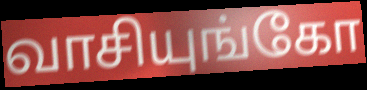
வாசியுங்கோ